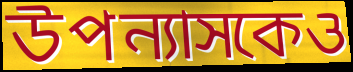
উপন্যাসকেও